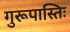
गुरूपास्तिः